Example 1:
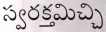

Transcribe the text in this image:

స్వరక్తమిచ్చి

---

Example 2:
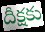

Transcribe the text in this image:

దీక్షకు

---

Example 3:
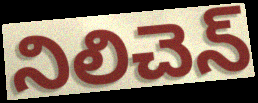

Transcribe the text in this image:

నిలిచెన్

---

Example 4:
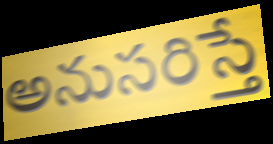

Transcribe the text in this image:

అనుసరిస్తే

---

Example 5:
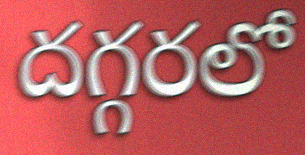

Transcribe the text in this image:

దగ్గరలో